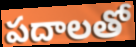
పదాలతో